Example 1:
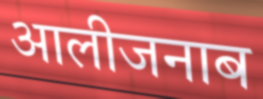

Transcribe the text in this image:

आलीजनाब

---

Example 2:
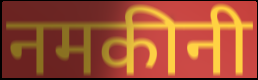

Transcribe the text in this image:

नमकीनी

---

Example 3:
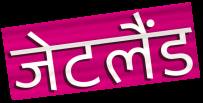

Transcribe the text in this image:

जेटलैंड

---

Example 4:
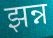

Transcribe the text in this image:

झन्न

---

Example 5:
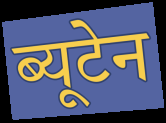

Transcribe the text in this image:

ब्यूटेन